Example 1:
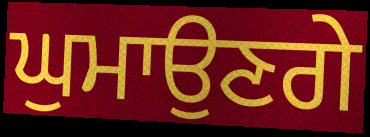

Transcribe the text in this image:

ਘੁਮਾਉਣਗੇ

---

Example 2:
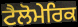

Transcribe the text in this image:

ਟੈਲੋਮੇਰਿਕ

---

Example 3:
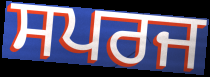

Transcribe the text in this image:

ਸਪਰਜ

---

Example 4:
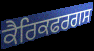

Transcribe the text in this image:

ਕੈਰਿਕਫਰਗਸ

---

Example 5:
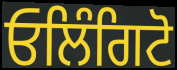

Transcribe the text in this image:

ਓਲਿੰਗਿਟੋ